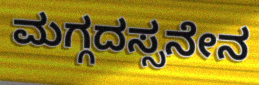
ಮಗ್ಗದಸ್ಸನೇನ